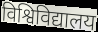
विश्विविद्यालय